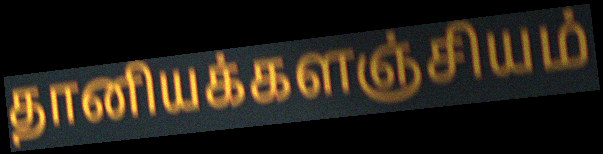
தானியக்களஞ்சியம்